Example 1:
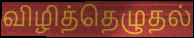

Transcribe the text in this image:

விழித்தெழுதல்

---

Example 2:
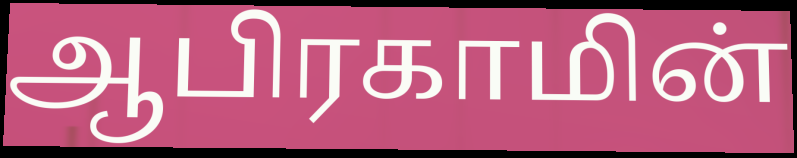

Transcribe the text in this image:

ஆபிரகாமின்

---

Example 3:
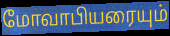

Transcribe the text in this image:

மோவாபியரையும்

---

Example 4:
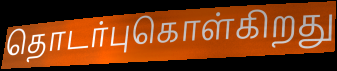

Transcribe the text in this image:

தொடர்புகொள்கிறது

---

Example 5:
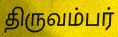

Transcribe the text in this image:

திருவம்பர்